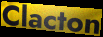
Clacton